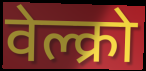
वेल्क्रो